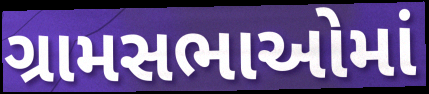
ગ્રામસભાઓમાં